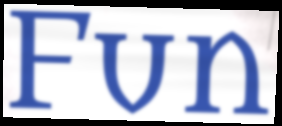
Fun